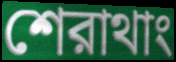
শেরাথাং